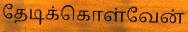
தேடிக்கொள்வேன்